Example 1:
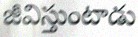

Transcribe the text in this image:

జీవిస్తుంటాడు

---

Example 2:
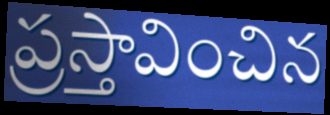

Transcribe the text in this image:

ప్రస్తావించిన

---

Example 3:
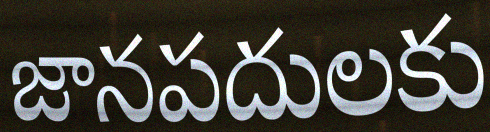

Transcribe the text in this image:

జానపదులకు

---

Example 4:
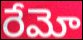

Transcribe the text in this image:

రేమో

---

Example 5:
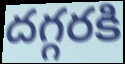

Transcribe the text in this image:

దగ్గరకి